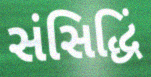
સંસિદ્ધિં